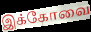
இக்கோவை